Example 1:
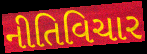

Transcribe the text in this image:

નીતિવિચાર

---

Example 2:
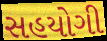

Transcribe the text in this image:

સહયોગી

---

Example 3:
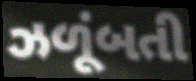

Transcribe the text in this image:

ઝળૂંબતી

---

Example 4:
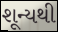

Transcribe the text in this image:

શૂન્યથી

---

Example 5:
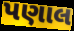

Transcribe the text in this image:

પણાલ